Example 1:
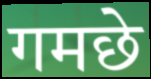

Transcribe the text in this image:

गमछे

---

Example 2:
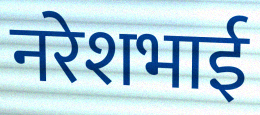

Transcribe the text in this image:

नरेशभाई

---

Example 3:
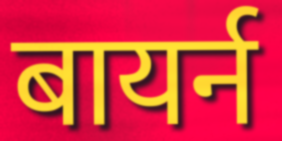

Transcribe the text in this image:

बायर्न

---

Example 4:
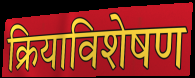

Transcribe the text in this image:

क्रियाविशेषण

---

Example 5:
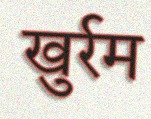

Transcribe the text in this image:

खुर्रम